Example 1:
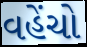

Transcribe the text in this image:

વહેંચો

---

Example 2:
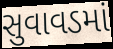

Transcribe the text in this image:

સુવાવડમાં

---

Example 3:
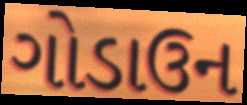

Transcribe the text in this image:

ગોડાઉન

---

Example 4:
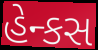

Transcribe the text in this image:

હેન્કસ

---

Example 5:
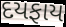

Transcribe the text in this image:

દયફાય